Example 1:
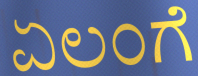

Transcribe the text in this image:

ಏಲಂಗೆ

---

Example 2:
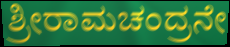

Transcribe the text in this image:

ಶ್ರೀರಾಮಚಂದ್ರನೇ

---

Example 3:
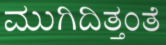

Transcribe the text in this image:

ಮುಗಿದಿತ್ತಂತೆ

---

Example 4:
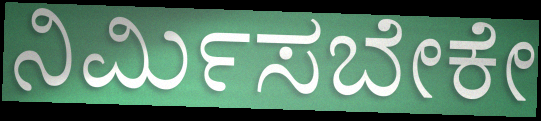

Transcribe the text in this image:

ನಿರ್ಮಿಸಬೇಕೇ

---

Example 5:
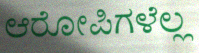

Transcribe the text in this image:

ಆರೋಪಿಗಳೆಲ್ಲ